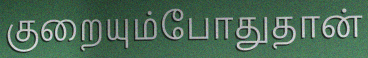
குறையும்போதுதான்